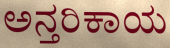
ಅನ್ತರಿಕಾಯ